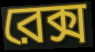
রেক্স